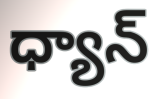
ధ్యాన్